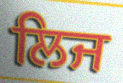
ਲਿਜ